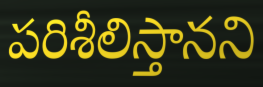
పరిశీలిస్తానని